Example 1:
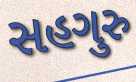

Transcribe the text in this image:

સહગુરુ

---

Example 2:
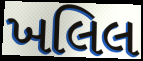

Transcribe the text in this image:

ખલિલ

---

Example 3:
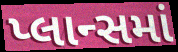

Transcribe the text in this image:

પ્લાન્સમાં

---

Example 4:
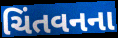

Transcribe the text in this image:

ચિંતવનના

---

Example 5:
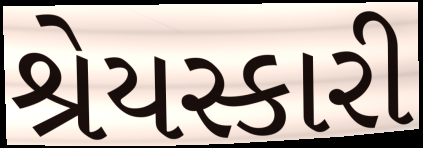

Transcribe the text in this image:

શ્રેયસ્કારી